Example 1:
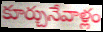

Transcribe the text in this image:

కూర్చునేవాళ్లం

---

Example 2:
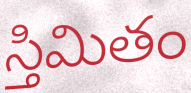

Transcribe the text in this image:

స్తిమితం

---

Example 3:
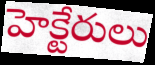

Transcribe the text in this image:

హెక్టేరులు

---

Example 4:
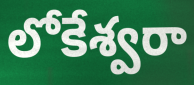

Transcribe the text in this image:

లోకేశ్వరా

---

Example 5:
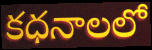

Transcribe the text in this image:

కధనాలలో